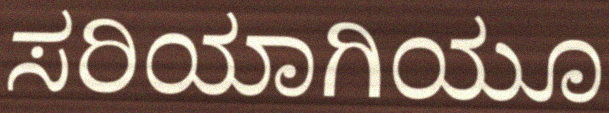
ಸರಿಯಾಗಿಯೂ